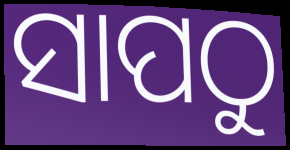
ସାପଠୁ